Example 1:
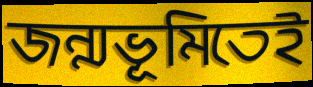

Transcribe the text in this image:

জন্মভূমিতেই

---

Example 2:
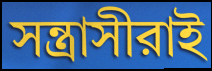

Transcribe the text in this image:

সন্ত্রাসীরাই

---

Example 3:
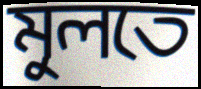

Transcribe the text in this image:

মুলতে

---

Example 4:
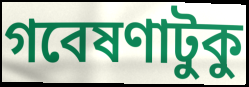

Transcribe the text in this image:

গবেষণাটুকু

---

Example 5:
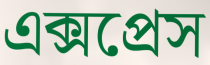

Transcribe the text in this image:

এক্সপ্রেস